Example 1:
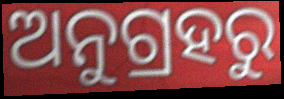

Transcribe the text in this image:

ଅନୁଗ୍ରହରୁ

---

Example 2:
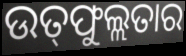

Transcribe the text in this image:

ଉତ୍‌ଫୁଲ୍ଲତାର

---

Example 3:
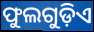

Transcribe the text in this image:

ଫୁଲଗୁଡ଼ିଏ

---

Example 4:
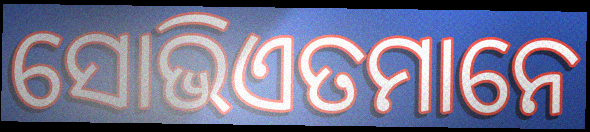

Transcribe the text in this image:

ସୋଭିଏତମାନେ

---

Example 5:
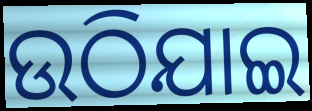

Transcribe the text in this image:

ଉଠିଯାଇ